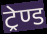
ट्रेण्ड